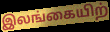
இலங்கையிற்